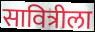
सावित्रीला